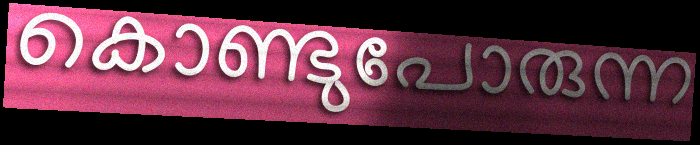
കൊണ്ടുപോരുന്ന